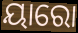
ୟାରୋ